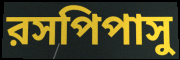
রসপিপাসু